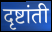
दृष्टांती